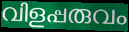
വിളപ്പരുവം